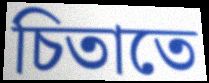
চিতাতে